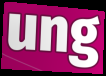
ung